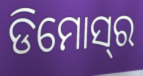
ଡିମୋସ୍‌ର